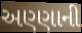
અણ્ણાની